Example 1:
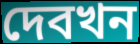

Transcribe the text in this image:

দেবখন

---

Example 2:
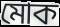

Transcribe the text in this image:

মোক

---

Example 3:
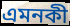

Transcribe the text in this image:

এমনকী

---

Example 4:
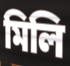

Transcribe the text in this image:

মিলি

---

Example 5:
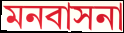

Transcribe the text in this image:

মনবাসনা